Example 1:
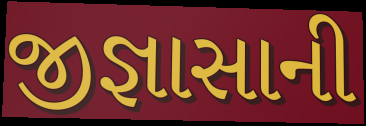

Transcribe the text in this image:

જીજ્ઞાસાની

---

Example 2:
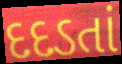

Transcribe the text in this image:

દદડતાં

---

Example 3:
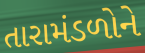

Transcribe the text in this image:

તારામંડળોને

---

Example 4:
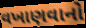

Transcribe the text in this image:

વખાણવાનો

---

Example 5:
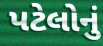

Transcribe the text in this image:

પટેલોનું